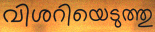
വിശറിയെടുത്തു